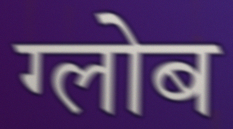
ग्लोब